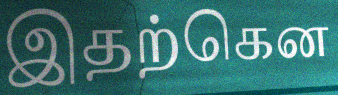
இதற்கென